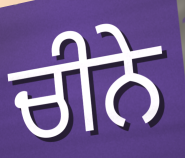
ਚੀਨੇ